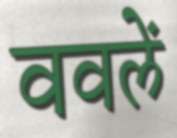
ववलें